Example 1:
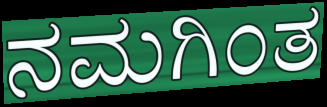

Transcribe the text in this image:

ನಮಗಿಂತ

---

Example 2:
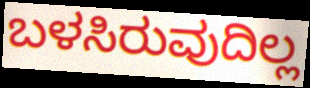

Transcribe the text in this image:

ಬಳಸಿರುವುದಿಲ್ಲ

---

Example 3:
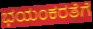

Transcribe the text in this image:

ಭಯಂಕರತೆಗೆ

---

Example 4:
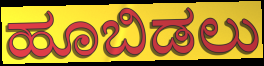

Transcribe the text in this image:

ಹೂಬಿಡಲು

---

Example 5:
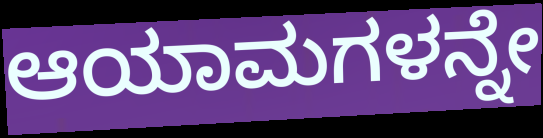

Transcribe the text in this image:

ಆಯಾಮಗಳನ್ನೇ